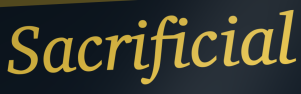
Sacrificial